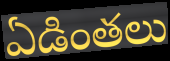
ఏడింతలు